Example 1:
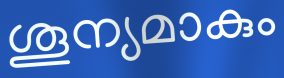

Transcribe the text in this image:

ശൂന്യമാകും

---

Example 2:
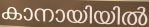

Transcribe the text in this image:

കാനായിയിൽ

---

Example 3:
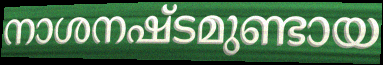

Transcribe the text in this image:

നാശനഷ്ടമുണ്ടായ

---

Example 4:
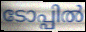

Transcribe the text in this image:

ടോപ്പിൽ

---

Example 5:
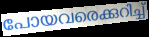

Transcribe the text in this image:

പോയവരെക്കുറിച്ച്